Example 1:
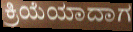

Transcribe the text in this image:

ಕ್ರಿಯೆಯಾದಾಗ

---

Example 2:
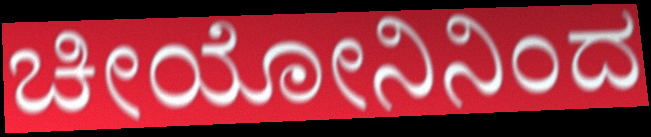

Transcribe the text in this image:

ಚೀಯೋನಿನಿಂದ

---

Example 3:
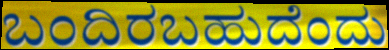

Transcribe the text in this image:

ಬಂದಿರಬಹುದೆಂದು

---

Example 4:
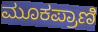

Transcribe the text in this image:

ಮೂಕಪ್ರಾಣಿ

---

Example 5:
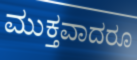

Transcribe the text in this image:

ಮುಕ್ತವಾದರೂ